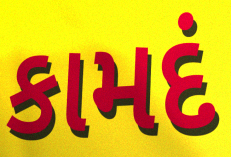
કામદં